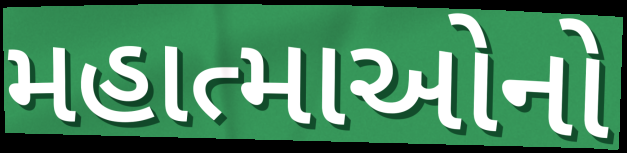
મહાત્માઓનો